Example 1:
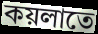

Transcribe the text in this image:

কয়লাতে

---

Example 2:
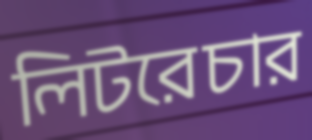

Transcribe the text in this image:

লিটরেচার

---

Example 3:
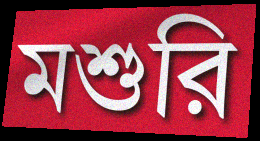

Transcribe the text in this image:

মশুরি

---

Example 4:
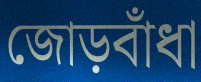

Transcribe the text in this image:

জোড়বাঁধা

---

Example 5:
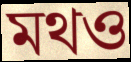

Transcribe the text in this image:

মথও